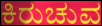
ಕಿರುಚುವ